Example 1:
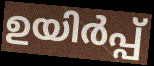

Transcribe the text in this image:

ഉയിർപ്പ്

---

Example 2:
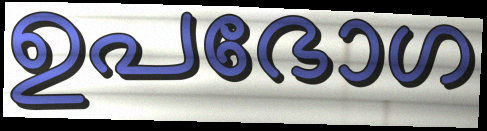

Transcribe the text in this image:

ഉപഭോഗ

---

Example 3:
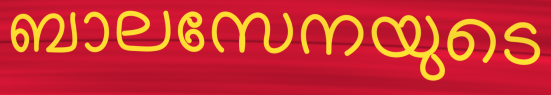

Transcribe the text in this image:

ബാലസേനയുടെ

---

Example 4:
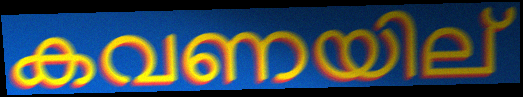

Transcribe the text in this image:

കവണയില്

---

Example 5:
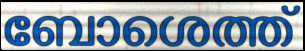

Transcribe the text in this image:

ബോശെത്ത്